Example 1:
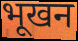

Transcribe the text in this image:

भूखन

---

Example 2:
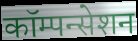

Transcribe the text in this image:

कॉम्पन्सेशन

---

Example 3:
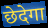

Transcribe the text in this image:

छेदेगा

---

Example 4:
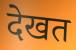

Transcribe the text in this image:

देखत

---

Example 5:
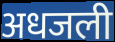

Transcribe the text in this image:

अधजली